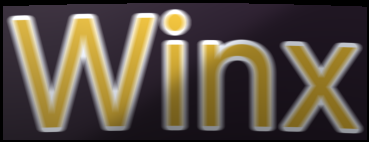
Winx